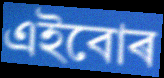
এইবোৰ